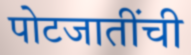
पोटजातींची